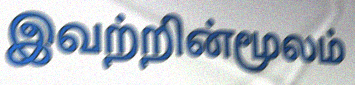
இவற்றின்மூலம்